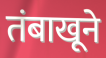
तंबाखूने